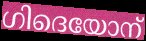
ഗിദെയോന്